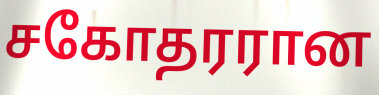
சகோதரரான